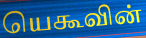
யெகூவின்